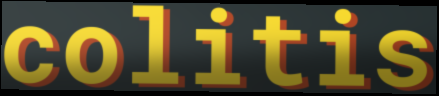
colitis